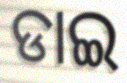
ଡାଇ